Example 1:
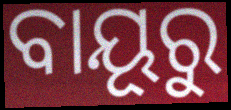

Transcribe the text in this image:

ବାୟୂରୁ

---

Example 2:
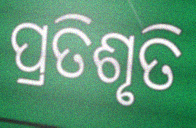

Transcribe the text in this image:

ପ୍ରତିଶୃତି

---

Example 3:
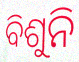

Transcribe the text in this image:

ବିଶୁନି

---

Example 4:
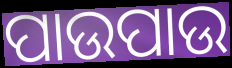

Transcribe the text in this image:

ପାଉପାଉ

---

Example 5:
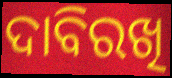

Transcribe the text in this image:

ଦାବିରଖି